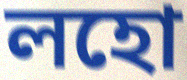
লহো